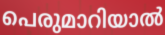
പെരുമാറിയാൽ